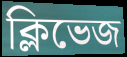
ক্লিভেজ